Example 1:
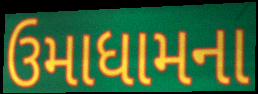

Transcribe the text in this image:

ઉમાધામના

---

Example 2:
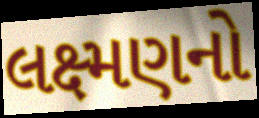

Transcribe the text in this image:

લક્ષ્મણનો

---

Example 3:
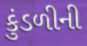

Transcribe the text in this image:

કુંડળીની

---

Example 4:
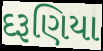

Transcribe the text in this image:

દરૂણિયા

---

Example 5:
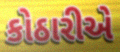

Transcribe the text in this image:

કોઠારીએ